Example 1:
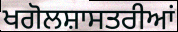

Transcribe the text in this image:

ਖਗੋਲਸ਼ਾਸਤਰੀਆਂ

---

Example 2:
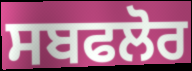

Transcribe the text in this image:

ਸਬਫਲੋਰ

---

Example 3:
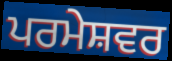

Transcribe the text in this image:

ਪਰਮੇਸ਼ਵਰ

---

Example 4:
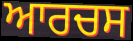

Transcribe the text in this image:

ਆਰਚਸ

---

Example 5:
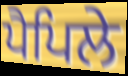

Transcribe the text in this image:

ਪੈਪਿਲੇ